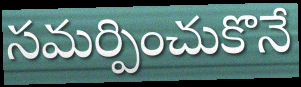
సమర్పించుకొనే